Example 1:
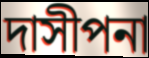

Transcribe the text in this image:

দাসীপনা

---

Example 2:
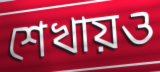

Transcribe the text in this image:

শেখায়ও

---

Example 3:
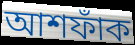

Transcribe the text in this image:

আশফাঁক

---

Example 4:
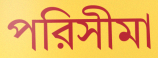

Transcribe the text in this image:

পরিসীমা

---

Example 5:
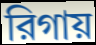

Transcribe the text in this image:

রিগায়